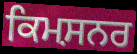
ਕਿਮ਼ਸਨਰ